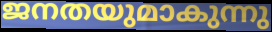
ജനതയുമാകുന്നു